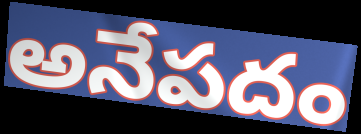
అనేపదం